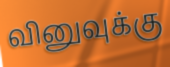
வினுவுக்கு